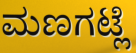
ಮಣಗಟ್ಲೆ